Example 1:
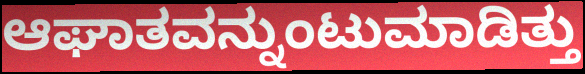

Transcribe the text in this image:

ಆಘಾತವನ್ನುಂಟುಮಾಡಿತ್ತು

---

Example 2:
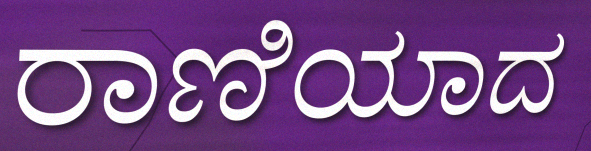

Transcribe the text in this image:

ರಾಣಿಯಾದ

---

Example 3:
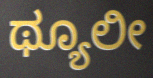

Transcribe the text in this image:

ಥ್ಯೂಲೀ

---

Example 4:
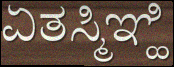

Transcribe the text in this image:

ಏತಸ್ಮಿಞ್ಹಿ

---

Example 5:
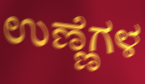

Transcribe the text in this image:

ಉಣ್ಣೆಗಳ